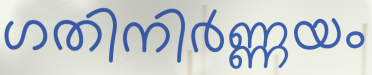
ഗതിനിർണ്ണയം